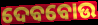
ଦେବବୋଉ